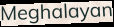
Meghalayan